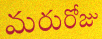
మరురోజు